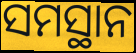
ସମସ୍ଥାନ